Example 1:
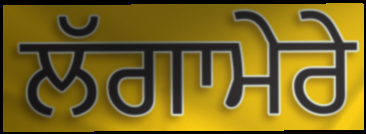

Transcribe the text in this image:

ਲੱਗਾਮੇਰੇ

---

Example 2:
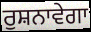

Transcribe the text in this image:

ਰੁਸ਼ਨਾਵੇਗਾ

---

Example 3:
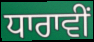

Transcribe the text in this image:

ਧਾਰਾਵੀਂ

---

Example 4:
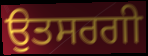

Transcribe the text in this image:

ਉਤਸਰਗੀ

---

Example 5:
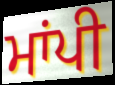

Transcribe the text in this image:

ਮਾਂਪੀ